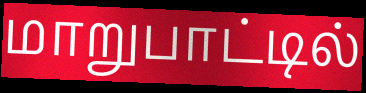
மாறுபாட்டில்